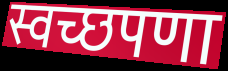
स्वच्छपणा